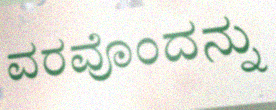
ವರವೊಂದನ್ನು